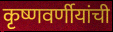
कृष्णवर्णीयांची